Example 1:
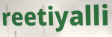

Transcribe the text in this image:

reetiyalli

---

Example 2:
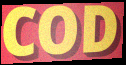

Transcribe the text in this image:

COD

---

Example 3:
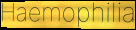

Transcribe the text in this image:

Haemophilia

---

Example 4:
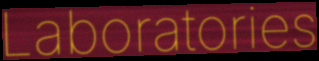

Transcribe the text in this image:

Laboratories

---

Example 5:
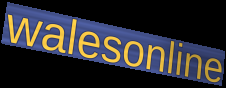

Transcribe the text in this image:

walesonline